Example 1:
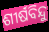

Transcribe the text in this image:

ଶୀର୍ଷବିନ୍ଦୁ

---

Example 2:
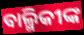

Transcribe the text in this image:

ବାଲ୍ମିକୀଙ୍କ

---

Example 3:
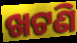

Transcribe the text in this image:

ଖଟଣି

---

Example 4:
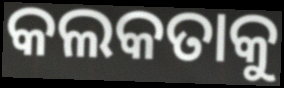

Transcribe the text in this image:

କଲକତାକୁ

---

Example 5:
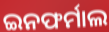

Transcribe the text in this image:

ଇନଫର୍ମାଲ